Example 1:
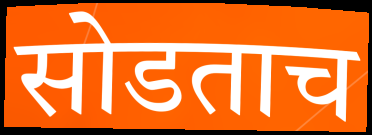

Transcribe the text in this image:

सोडताच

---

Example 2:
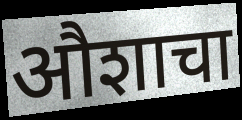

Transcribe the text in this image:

औशाचा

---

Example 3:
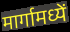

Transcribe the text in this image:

मार्गामध्यें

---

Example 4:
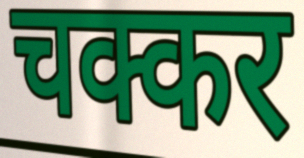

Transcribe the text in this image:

चक्कर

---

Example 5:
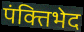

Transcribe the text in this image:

पंक्तिभेद